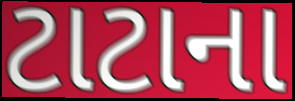
ટાટાના